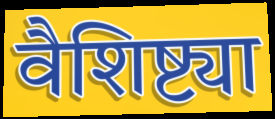
वैशिष्ट्या